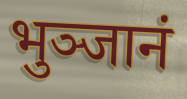
भुञ्जानं